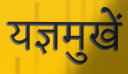
यज्ञमुखें